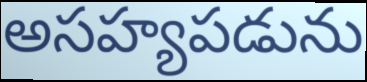
అసహ్యపడును